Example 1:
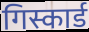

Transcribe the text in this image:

गिस्कार्ड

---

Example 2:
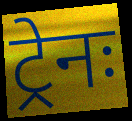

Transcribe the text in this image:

ट्रेनः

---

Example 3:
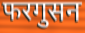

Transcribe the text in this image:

फरगुसन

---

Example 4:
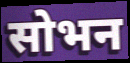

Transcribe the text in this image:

सोभन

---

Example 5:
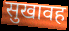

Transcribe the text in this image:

सुखावह